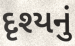
દૃશ્યનું